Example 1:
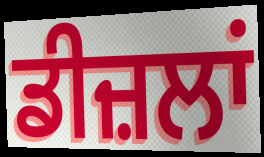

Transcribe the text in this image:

ਡੀਜ਼ਲਾਂ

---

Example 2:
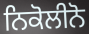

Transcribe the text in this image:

ਨਿਕੋਲੀਨੋ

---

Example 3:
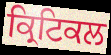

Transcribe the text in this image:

ਕ੍ਰਿਟਿਕਲ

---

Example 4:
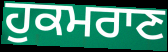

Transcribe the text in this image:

ਹੁਕਮਰਾਣ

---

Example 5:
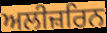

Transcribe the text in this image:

ਅਲੀਜ਼ਰਿਨ